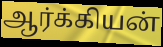
ஆர்க்கியன்